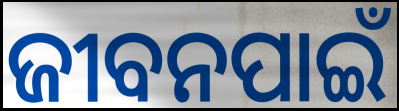
ଜୀବନପାଇଁ